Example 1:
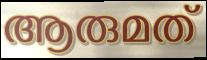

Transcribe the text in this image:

ആരുമത്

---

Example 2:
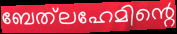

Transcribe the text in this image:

ബേത്‌ലഹേമിന്റെ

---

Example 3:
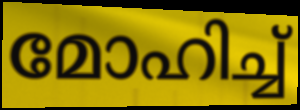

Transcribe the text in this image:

മോഹിച്ച്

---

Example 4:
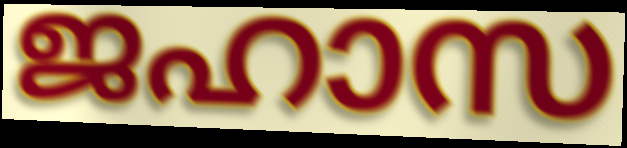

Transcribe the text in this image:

ജഹാസ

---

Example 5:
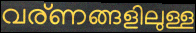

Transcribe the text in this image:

വര്ണങ്ങളിലുള്ള